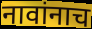
नावांनाच